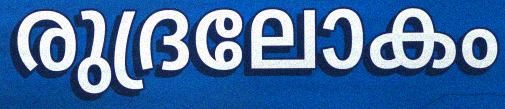
രുദ്രലോകം